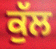
ਕੁੱਲ